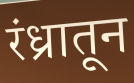
रंध्रातून